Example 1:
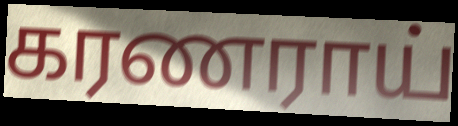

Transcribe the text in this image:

கரணராய்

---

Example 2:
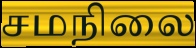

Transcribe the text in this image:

சமநிலை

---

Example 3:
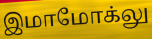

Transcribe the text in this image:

இமாமோக்லு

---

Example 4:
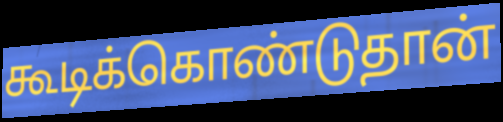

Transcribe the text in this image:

கூடிக்கொண்டுதான்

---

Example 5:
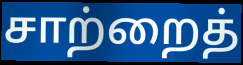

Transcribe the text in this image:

சாற்றைத்